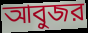
আবুজর